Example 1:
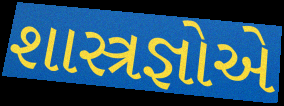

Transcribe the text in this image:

શાસ્ત્રજ્ઞોએ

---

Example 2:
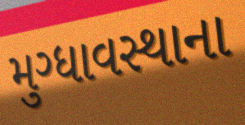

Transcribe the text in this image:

મુગ્ધાવસ્થાના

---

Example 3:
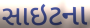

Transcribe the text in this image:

સાઇટના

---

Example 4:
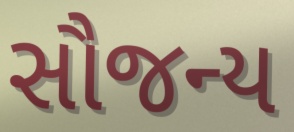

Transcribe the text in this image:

સૌજન્ય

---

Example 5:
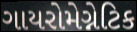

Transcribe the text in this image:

ગાયરોમેગ્નેટિક